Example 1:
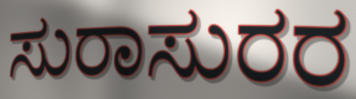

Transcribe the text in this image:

ಸುರಾಸುರರ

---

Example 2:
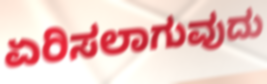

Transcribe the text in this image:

ಏರಿಸಲಾಗುವುದು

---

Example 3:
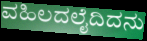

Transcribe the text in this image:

ವಹಿಲದಲೈದಿದನು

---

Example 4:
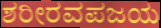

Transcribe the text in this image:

ಶರೀರವಪಜಯ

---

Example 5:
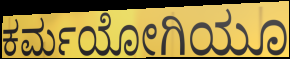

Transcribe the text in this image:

ಕರ್ಮಯೋಗಿಯೂ